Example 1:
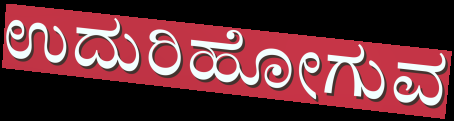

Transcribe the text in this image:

ಉದುರಿಹೋಗುವ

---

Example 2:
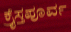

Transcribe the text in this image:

ಕ್ರೈಸ್ತಪೂರ್ವ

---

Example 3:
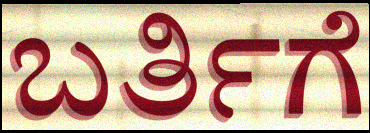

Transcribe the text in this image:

ಬರ್ತಿಗೆ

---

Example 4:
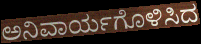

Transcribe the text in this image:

ಅನಿವಾರ್ಯಗೊಳಿಸಿದ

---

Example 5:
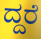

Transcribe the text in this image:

ದ್ದರೆ